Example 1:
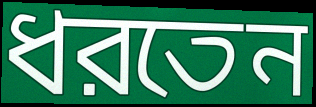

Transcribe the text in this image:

ধরতেন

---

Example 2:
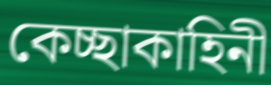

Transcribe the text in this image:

কেচ্ছাকাহিনী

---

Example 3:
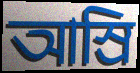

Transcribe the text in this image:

আস্রি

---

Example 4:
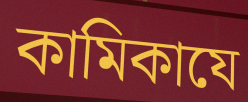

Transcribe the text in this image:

কামিকাযে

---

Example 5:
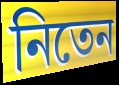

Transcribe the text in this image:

নিতেন